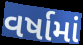
વર્ષામાં